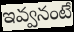
ఇవ్వనంటే